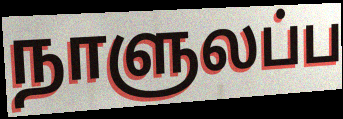
நாளுலப்ப